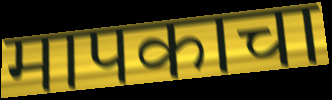
मापकाचा